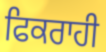
ਫਿਕਰਾਹੀ